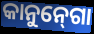
କାନୁନ୍‍ଗୋ